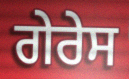
ਗੇਰੇਸ